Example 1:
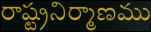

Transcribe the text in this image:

రాష్ట్రనిర్మాణము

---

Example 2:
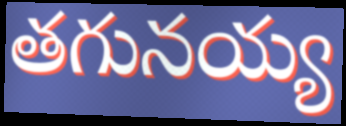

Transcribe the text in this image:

తగునయ్య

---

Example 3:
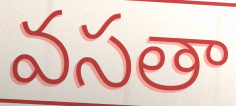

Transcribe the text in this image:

వసతా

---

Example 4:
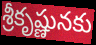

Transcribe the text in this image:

శ్రీకృష్ణునకు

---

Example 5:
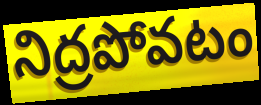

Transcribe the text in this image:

నిద్రపోవటం